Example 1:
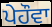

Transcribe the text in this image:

ਪੇਹੌਵਾ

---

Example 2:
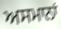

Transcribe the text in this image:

ਅਸਮਾਨਾਂ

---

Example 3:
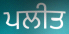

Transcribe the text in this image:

ਪਲੀਤ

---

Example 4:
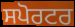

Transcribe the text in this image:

ਸਪੋਰਟਰ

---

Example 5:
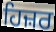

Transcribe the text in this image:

ਹਿਜ਼ਰ